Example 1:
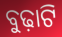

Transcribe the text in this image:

ବୁଢ଼ାଟି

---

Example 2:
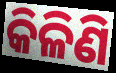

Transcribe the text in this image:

କିଳିଣି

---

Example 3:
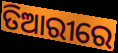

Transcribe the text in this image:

ତିଆରୀରେ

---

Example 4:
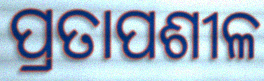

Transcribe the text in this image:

ପ୍ରତାପଶୀଳ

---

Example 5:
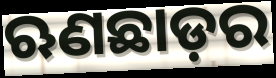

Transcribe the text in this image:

ଋଣଛାଡ଼ର